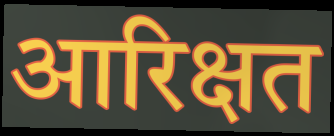
आरिक्षत